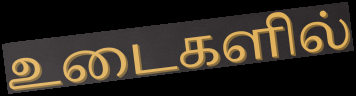
உடைகளில்